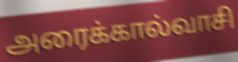
அரைக்கால்வாசி